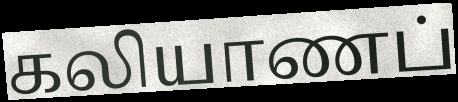
கலியாணப்